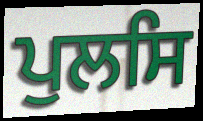
ਪੁਲਸਿ